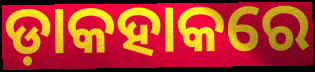
ଡ଼ାକହାକରେ